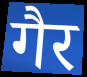
गैर